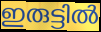
ഇരുട്ടിൽ